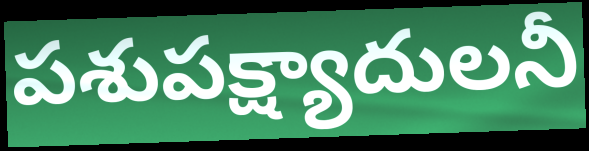
పశుపక్ష్యాదులనీ